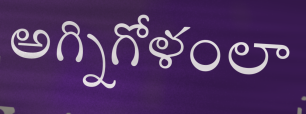
అగ్నిగోళంలా